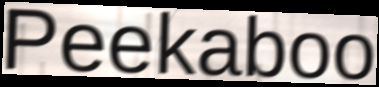
Peekaboo